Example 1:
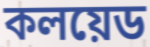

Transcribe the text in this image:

কলয়েড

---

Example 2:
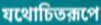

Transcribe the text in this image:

যথোচিতরূপে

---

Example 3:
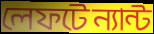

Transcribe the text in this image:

লেফটেন্যান্ট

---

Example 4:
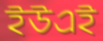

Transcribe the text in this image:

ইউএই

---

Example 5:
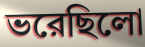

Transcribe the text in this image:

ভরেছিলো